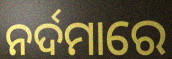
ନର୍ଦମାରେ